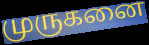
முருகனை